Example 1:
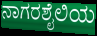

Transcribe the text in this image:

ನಾಗರಶೈಲಿಯ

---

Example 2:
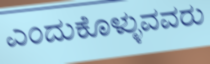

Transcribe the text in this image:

ಎಂದುಕೊಳ್ಳುವವರು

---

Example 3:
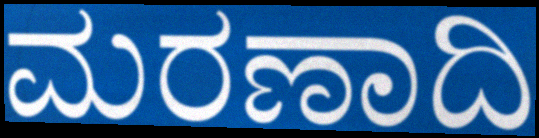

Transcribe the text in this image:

ಮರಣಾದಿ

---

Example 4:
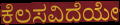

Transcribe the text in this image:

ಕೆಲಸವಿದೆಯೇ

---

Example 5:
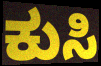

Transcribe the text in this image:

ಕುಸಿ